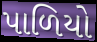
પાળિયો